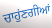
ਚਾਹੁਂਣਗੀਆਂ